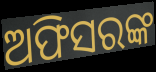
ଅଫିସରଙ୍କ